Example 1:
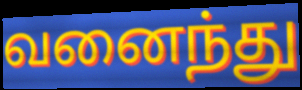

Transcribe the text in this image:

வனைந்து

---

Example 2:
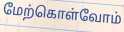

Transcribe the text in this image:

மேற்கொள்வோம்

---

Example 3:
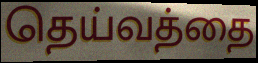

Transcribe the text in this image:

தெய்வத்தை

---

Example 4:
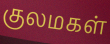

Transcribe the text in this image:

குலமகள்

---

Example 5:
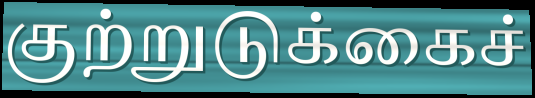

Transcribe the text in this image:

குற்றுடுக்கைச்